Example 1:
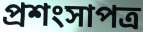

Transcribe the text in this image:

প্ৰশংসাপত্ৰ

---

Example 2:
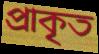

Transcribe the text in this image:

প্ৰাকৃত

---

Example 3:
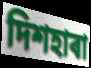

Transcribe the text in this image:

দিশহাৰা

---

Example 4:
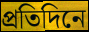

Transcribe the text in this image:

প্ৰতিদিনে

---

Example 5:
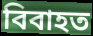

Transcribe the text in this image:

বিবাহত